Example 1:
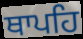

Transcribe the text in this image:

ਥਾਪਹਿ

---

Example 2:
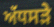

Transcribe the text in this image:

ਅੱਧਸੜੇ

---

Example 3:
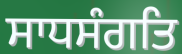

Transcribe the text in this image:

ਸਾਧਸੰਗਤਿ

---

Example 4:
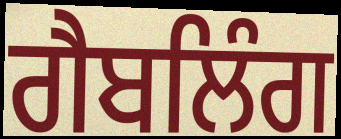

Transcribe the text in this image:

ਗੈਬਲਿੰਗ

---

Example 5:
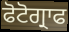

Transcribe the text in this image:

ਫੋਟੋਗ੍ਰਾਫ